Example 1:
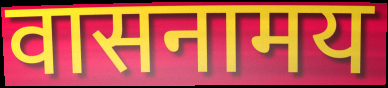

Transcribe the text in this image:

वासनामय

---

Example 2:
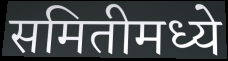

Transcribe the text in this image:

समितीमध्ये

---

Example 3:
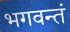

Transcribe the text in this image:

भगवन्तं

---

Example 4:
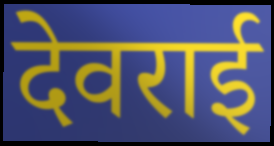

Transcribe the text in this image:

देवराई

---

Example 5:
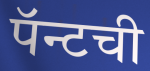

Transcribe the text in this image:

पॅन्टची